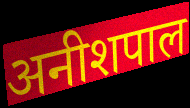
अनीशपाल